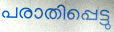
പരാതിപ്പെട്ടു